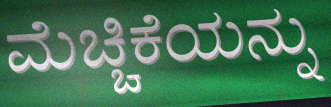
ಮೆಚ್ಚಿಕೆಯನ್ನು